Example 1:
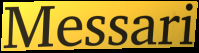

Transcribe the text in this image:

Messari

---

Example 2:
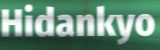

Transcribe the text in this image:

Hidankyo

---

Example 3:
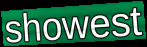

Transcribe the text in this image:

showest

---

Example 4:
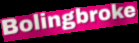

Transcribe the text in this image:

Bolingbroke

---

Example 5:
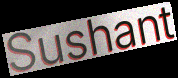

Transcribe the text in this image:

Sushant